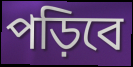
পড়িবে